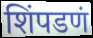
शिंपडणं